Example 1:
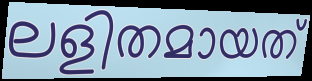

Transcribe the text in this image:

ലളിതമായത്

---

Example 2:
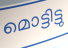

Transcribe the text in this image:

മൊട്ടിട്ടു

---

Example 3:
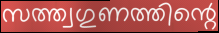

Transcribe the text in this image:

സത്ത്വഗുണത്തിന്റെ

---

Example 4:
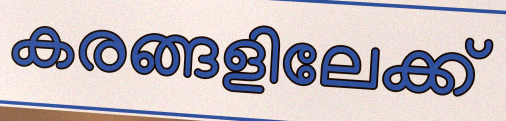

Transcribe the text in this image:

കരങ്ങളിലേക്ക്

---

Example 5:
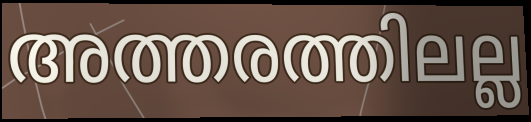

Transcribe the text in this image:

അത്തരത്തിലല്ല